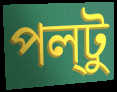
পল্‌টু